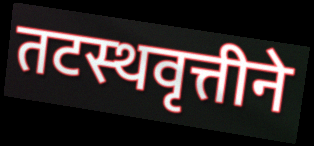
तटस्थवृत्तीने